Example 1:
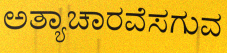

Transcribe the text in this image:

ಅತ್ಯಾಚಾರವೆಸಗುವ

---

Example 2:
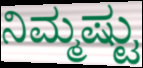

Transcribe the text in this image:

ನಿಮ್ಮಷ್ಟು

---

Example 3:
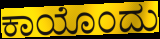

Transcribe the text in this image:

ಕಾಯೊಂದು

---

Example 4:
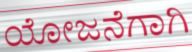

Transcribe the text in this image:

ಯೋಜನೆಗಾಗಿ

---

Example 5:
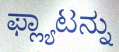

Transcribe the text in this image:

ಫ್ಲ್ಯಾಟನ್ನು